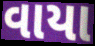
વાયા